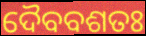
ଦୈବବଶତଃ